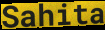
Sahita